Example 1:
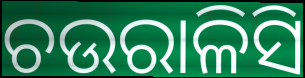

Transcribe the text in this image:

ଚଉରାଳିସି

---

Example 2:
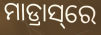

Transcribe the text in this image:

ମାଡ୍ରାସ୍‌ରେ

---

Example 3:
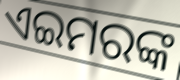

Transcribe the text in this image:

ଏଇମରଙ୍କ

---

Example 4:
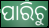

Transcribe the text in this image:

ପାରିଚୁ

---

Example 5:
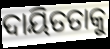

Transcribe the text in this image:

ଦାୟିତତାକୁ